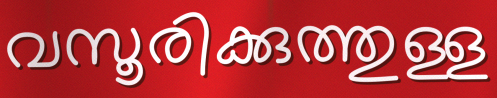
വസൂരിക്കുത്തുള്ള